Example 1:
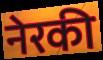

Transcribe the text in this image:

नेरकी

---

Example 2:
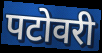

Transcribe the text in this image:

पटोवरी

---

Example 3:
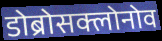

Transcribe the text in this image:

डोब्रोसक्लोनोव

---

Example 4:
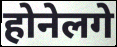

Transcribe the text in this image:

होनेलगे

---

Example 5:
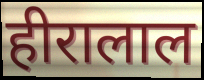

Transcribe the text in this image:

हीरालाल